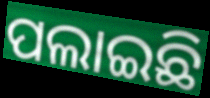
ପଲାଇଛି